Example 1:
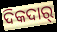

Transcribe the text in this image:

ଦିକଦାର୍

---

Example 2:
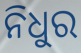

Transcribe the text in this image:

ନିଧୁର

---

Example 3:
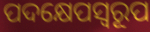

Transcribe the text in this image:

ପଦକ୍ଷେପସ୍ଵରୂପ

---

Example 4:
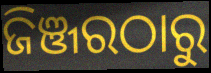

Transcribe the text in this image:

ଜିଞ୍ଜରଠାରୁ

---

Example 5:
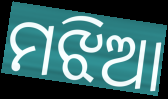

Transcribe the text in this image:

ମଝିଆ